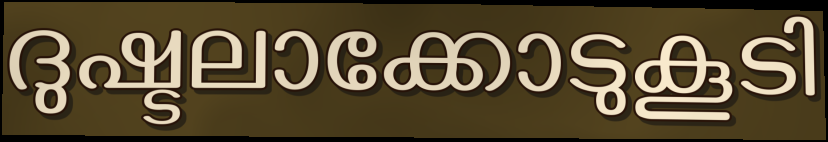
ദുഷ്ടലാക്കോടുകൂടി